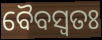
ବୈବସ୍ଵତଃ